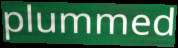
plummed